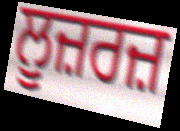
ਲੂਜ਼ਰਜ਼